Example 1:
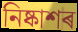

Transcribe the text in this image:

নিষ্কাশৰ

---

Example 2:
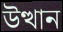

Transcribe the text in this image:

উত্থান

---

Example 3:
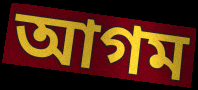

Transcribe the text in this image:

আগম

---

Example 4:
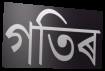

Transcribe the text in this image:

গতিৰ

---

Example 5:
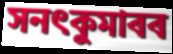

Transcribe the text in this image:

সনৎকুমাৰৰ